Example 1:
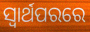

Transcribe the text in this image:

ସ୍ୱାର୍ଥପରରେ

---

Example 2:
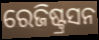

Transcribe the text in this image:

ରେଜିଷ୍ଟ୍ରସନ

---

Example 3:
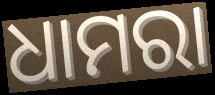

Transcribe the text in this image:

ଧାମରା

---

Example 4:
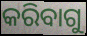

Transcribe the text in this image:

କରିବାଗୁ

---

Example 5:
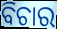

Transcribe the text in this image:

ବିଚାର